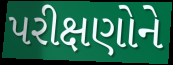
પરીક્ષણોને